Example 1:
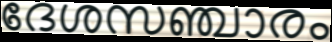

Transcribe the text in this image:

ദേശസഞ്ചാരം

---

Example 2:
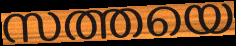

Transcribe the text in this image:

സത്തയെ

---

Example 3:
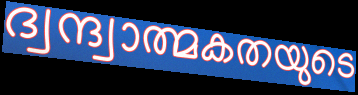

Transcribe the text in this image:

ദ്വന്ദ്വാത്മകതയുടെ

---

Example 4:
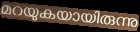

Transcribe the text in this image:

മറയുകയായിരുന്നു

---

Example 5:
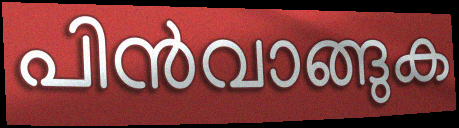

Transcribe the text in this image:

പിൻവാങ്ങുക